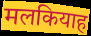
मलकियाह